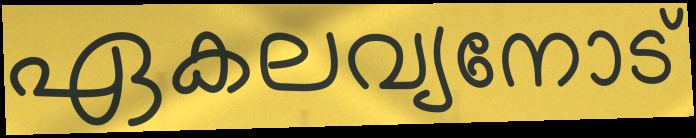
ഏകലവ്യനോട്